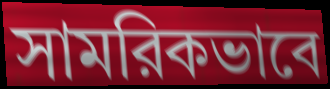
সামরিকভাবে